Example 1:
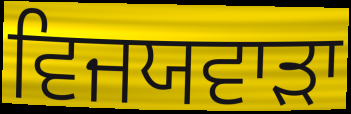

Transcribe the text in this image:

ਵਿਜਯਵਾੜਾ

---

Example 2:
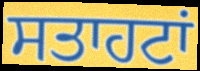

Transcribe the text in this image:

ਸਤਾਹਟਾਂ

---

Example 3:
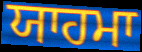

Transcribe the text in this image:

ਯਾਹਮਾ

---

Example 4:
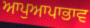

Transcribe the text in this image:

ਆਪੁਆਪਾਭਾਵ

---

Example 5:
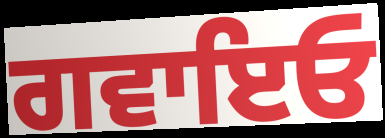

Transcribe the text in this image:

ਗਵਾਇਓ